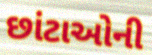
છાંટાઓની